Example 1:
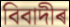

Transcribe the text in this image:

বিবাদীৰ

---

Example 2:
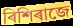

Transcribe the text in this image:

ৰিশিৰাজে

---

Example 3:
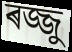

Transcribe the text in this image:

ৰজ্জু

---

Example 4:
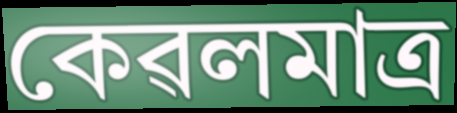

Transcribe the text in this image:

কেৱলমাত্ৰ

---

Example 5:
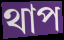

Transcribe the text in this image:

থাপ